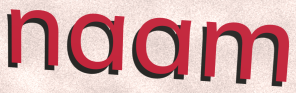
naam